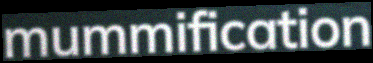
mummification